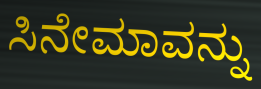
ಸಿನೇಮಾವನ್ನು